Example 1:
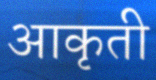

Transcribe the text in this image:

आकृती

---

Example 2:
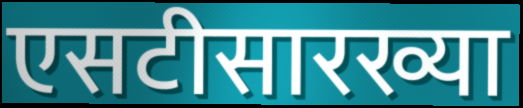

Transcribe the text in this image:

एसटीसारख्या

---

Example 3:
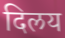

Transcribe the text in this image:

दिलय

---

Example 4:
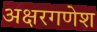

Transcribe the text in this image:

अक्षरगणेश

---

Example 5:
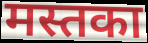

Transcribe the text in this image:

मस्तका